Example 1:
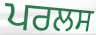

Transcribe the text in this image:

ਪਰਲਸ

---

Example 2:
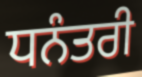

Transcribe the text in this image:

ਧਨੰਤਰੀ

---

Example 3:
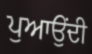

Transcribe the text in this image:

ਪੁਆਉਂਦੀ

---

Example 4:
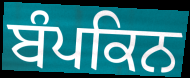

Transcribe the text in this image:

ਬੰਪਕਿਨ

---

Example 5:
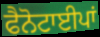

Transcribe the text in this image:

ਫੈਨੋਟਾਈਪਾਂ